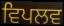
ਵਿਪਲਵ